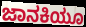
ಜಾನಕಿಯೂ